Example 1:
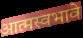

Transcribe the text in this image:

आत्मस्वभावे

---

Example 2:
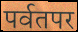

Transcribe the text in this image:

पर्वतपर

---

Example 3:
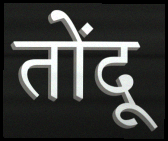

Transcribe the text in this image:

तोंदू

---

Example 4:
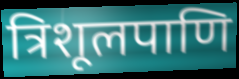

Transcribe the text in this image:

त्रिशूलपाणि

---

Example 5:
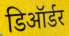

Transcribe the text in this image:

डिऑर्डर